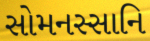
સોમનસ્સાનિ